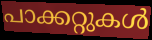
പാക്കറ്റുകൾ